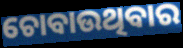
ଚୋବାଉଥିବାର